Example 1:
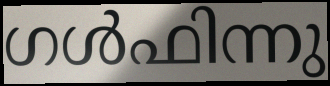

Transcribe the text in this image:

ഗൾഫിന്നു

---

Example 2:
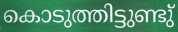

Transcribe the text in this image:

കൊടുത്തിട്ടുണ്ടു്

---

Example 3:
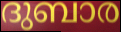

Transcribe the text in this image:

ദുബാര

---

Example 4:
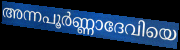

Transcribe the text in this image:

അന്നപൂർണ്ണാദേവിയെ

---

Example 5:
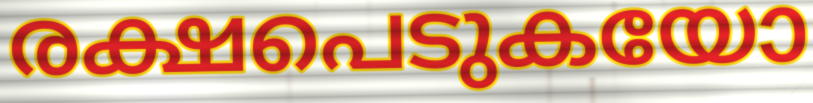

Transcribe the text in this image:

രക്ഷപെടുകയോ